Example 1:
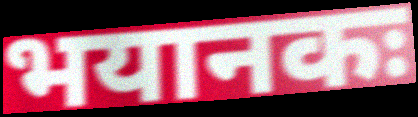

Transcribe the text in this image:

भयानकः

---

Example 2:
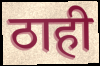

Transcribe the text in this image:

ठाही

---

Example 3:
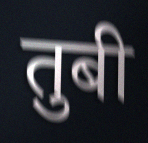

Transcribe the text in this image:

तुबी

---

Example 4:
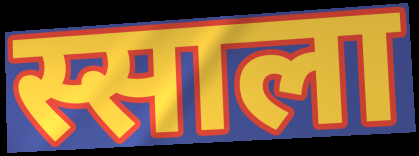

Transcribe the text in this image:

स्साला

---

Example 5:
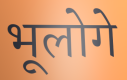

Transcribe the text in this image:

भूलोगे